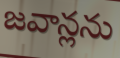
జవాన్లను